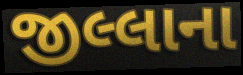
જીલ્લાના